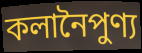
কলানৈপুণ্য